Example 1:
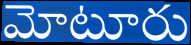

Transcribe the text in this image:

మోటూరు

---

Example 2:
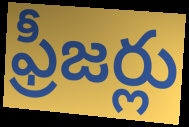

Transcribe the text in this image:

ఫ్రీజర్లు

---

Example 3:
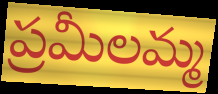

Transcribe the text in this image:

ప్రమీలమ్మ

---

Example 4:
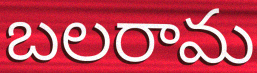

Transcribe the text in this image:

బలరామ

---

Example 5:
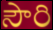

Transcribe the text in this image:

సౌరి